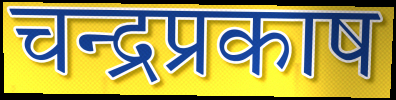
चन्द्रप्रकाष